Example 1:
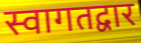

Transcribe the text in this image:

स्वागतद्वार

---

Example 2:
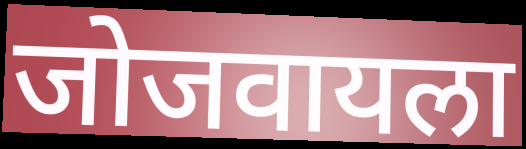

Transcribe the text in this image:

जोजवायला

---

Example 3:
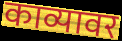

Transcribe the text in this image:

काव्यावर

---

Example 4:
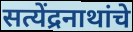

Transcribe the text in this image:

सत्येंद्रनाथांचे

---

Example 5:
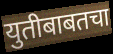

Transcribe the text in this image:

युतीबाबतचा